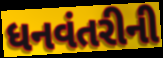
ધનવંતરીની